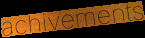
achivements